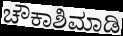
ಚೌಕಾಶಿಮಾಡಿ